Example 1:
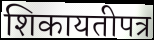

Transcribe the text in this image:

शिकायतीपत्र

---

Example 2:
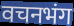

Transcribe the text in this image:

वचनभंग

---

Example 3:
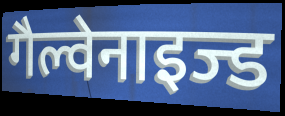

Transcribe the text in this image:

गैल्वेनाइज्ड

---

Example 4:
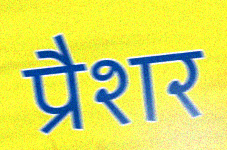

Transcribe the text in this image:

प्रैशर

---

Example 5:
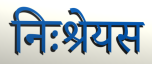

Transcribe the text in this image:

निःश्रेयस